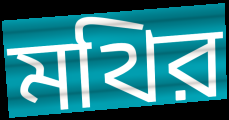
মথির